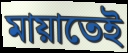
মায়াতেই